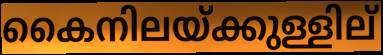
കൈനിലയ്ക്കുള്ളില്